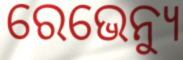
ରେଭେନ୍ୟୁ